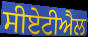
ਸੀਏਟੀਐਲ